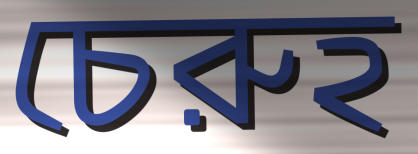
চেরুহ